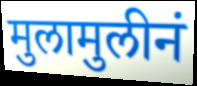
मुलामुलीनं